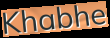
Khabhe